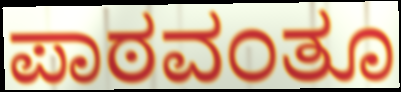
ಪಾಠವಂತೂ